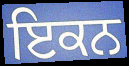
ਇਕਨ